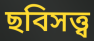
ছবিসত্ত্ব